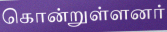
கொன்றுள்ளனர்